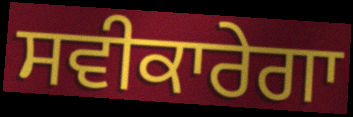
ਸਵੀਕਾਰੇਗਾ